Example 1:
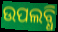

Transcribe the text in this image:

ଉପଲବ୍ଧି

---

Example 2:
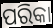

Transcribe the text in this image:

ପରିକା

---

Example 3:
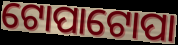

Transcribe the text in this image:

ଟୋପାଟୋପା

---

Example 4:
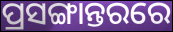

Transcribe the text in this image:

ପ୍ରସଙ୍ଗାନ୍ତରରେ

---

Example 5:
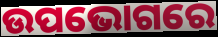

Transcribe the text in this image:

ଉପଭୋଗରେ